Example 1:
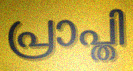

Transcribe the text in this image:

പ്രാപ്തി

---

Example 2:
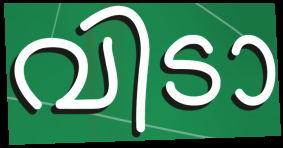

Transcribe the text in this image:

വിടാ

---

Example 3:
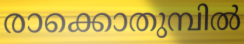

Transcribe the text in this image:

രാക്കൊതുമ്പിൽ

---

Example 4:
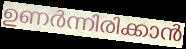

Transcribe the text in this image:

ഉണർന്നിരിക്കാൻ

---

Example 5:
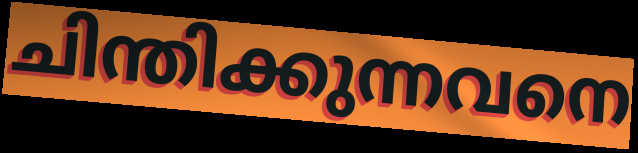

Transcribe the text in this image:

ചിന്തിക്കുന്നവനെ